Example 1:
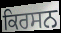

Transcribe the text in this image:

ਕਿਰਸਨ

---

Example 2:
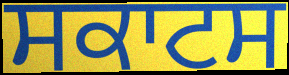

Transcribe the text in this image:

ਸਕਾਟਸ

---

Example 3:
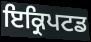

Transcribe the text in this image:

ਇਕ੍ਰਿਪਟਡ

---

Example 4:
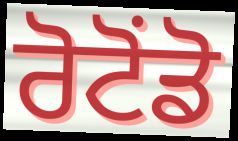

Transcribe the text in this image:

ਰੋਟੋਂਡੋ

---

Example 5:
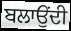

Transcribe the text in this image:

ਬਲਾਉਂਦੀ